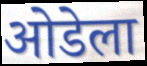
ओडेला